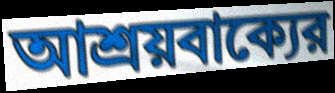
আশ্রয়বাক্যের